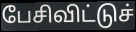
பேசிவிட்டுச்